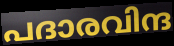
പദാരവിന്ദ